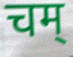
चम्